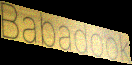
Babadook